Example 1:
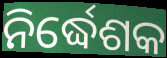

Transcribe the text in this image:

ନିର୍ଦ୍ଧେଶକ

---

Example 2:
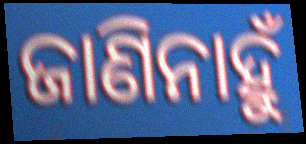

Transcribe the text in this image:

ଜାଣିନାହୁଁ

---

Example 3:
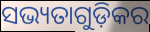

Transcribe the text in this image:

ସଭ୍ୟତାଗୁଡ଼ିକର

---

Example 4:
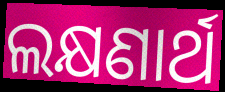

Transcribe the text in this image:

ଲକ୍ଷଣାର୍ଥ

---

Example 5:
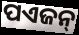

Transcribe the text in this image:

ପଏଜନ୍